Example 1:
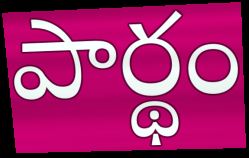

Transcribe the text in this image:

పార్థం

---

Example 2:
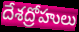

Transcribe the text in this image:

దేశద్రోహులు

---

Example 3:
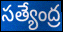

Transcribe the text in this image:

సత్యేంద్ర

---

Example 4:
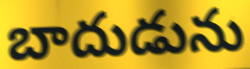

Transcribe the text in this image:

బాదుడును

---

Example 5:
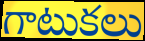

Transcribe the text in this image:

గాటుకలు